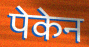
पेकेन